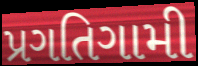
પ્રગતિગામી